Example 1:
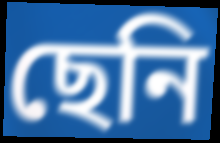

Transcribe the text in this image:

ছেনি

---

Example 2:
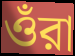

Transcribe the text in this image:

ওঁরা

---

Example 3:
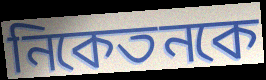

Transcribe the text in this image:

নিকেতনকে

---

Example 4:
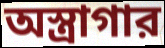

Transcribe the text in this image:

অস্ত্রাগার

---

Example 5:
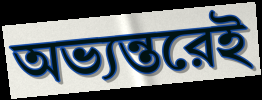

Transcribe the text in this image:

অভ্যন্তরেই